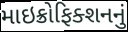
માઇક્રોફિક્શનનું